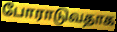
போராடுவதாக